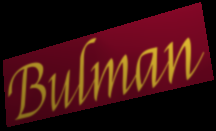
Bulman